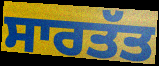
ਸਾਰਤੱਤ